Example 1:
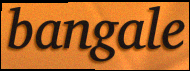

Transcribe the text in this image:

bangale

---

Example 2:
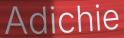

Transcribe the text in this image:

Adichie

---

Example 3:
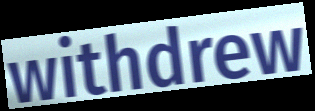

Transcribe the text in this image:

withdrew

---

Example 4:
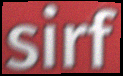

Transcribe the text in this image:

sirf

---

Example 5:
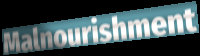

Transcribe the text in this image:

Malnourishment